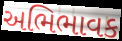
અભિભાવક